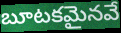
బూటకమైనవే